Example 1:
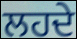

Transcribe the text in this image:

ਲਹਦੇ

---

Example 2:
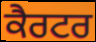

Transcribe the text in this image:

ਕੈਰਟਰ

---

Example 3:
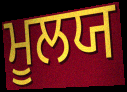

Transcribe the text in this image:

ਮੂਲਯ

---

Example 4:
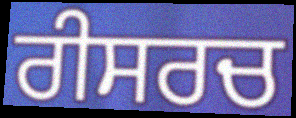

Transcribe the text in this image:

ਰੀਸਰਚ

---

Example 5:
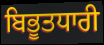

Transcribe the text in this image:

ਬਿਭੂਤਧਾਰੀ